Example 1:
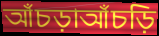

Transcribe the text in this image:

আঁচড়াআঁচড়ি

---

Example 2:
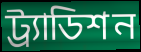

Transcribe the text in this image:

ট্র্যাডিশন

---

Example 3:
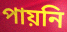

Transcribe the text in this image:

পায়নি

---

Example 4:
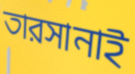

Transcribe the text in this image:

তারসানাই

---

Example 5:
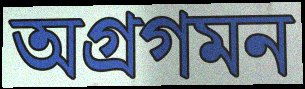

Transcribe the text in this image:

অগ্রগমন